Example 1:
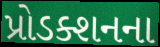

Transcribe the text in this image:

પ્રોડક્શનના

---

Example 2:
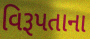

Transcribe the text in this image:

વિરૂપતાના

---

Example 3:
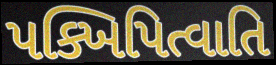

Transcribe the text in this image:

પક્ખિપિત્વાતિ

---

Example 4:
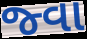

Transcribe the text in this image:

જ્વા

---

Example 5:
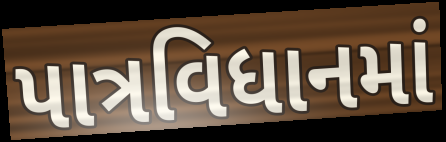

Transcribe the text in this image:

પાત્રવિધાનમાં